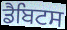
ਡੈਬਿਟਸ